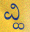
ವ್ಹಿ